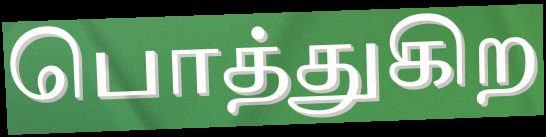
பொத்துகிற